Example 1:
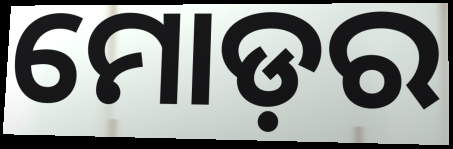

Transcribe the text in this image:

ମୋଡ଼ର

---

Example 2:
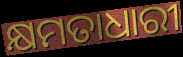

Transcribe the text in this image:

କ୍ଷମତାଧାରୀ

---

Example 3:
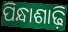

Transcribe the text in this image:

ପିନ୍ଧାଶାଢ଼ି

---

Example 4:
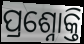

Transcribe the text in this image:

ପ୍ରଶ୍ନୋକ୍ତି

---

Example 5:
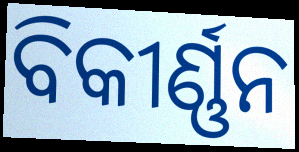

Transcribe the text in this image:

ବିକୀର୍ଣ୍ଣନ